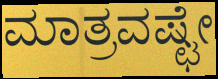
ಮಾತ್ರವಷ್ಟೇ